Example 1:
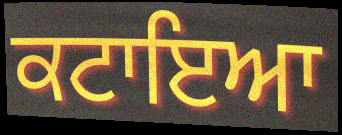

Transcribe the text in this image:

ਕਟਾਇਆ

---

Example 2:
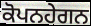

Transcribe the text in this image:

ਕੋਪਨਹੇਗਨ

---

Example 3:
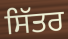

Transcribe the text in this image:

ਸਿੱਤਰ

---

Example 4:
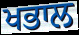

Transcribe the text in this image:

ਖਭਾਲ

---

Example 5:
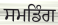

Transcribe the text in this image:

ਸਮਡਿੰਗ